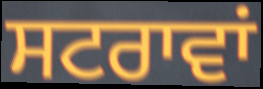
ਸਟਰਾਵਾਂ